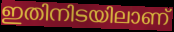
ഇതിനിടയിലാണ്